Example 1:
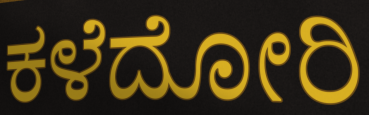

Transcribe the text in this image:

ಕಳೆದೋರಿ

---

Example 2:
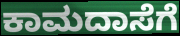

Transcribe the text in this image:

ಕಾಮದಾಸೆಗೆ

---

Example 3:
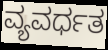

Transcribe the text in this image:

ವ್ಯವರ್ಧತ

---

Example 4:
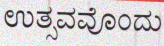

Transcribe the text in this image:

ಉತ್ಸವವೊಂದು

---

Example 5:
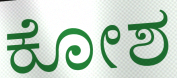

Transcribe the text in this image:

ಕೋಶ